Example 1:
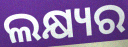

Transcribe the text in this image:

ଲକ୍ଷ୍ୟର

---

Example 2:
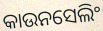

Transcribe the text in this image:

କାଉନସେଲିଂ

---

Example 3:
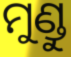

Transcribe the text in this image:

ମୁଣ୍ଡୁ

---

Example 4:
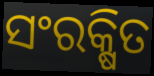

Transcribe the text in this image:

ସଂରକ୍ଷିତ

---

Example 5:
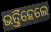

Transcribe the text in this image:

ଭର୍ତ୍ତିହେଲେ